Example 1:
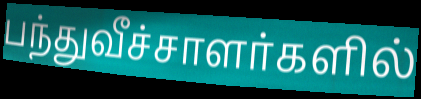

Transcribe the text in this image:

பந்துவீச்சாளர்களில்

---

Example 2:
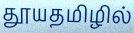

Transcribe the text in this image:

தூயதமிழில்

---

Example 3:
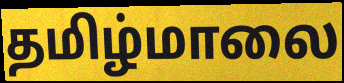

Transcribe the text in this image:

தமிழ்மாலை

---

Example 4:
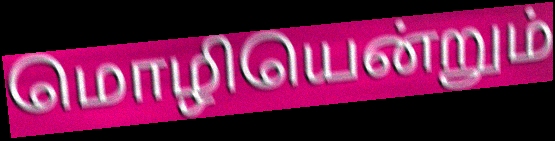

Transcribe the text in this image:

மொழியென்றும்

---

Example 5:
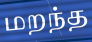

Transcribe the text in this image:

மறந்த